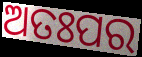
ଅତଃପର